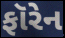
ફૉરેન